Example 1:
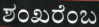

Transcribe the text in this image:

ಶಂಖರೆಂಬ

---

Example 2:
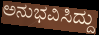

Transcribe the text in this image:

ಅನುಭವಿಸಿದ್ದು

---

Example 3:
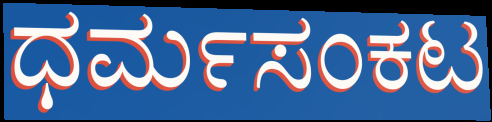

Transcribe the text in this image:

ಧರ್ಮಸಂಕಟ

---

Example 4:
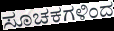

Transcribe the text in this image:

ಸೂಚಕಗಳಿಂದ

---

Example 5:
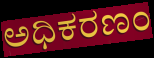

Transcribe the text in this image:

ಅಧಿಕರಣಂ